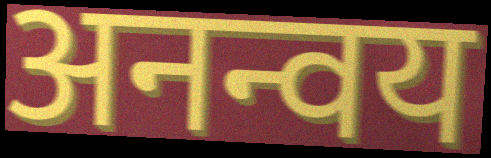
अनन्वय